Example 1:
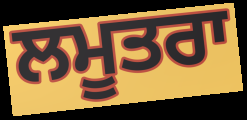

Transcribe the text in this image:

ਲਮੂਤਰਾ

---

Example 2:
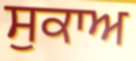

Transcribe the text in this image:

ਸੁਕਾਅ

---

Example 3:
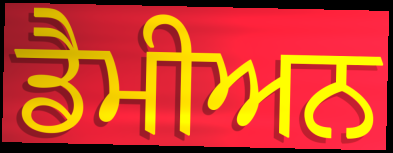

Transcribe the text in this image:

ਡੈਮੀਅਨ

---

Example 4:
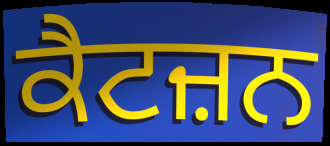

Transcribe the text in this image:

ਕੈਟਜ਼ਨ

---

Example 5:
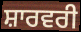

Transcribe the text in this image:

ਸ਼ਾਰਵਰੀ